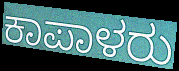
ಕಾಪಾಳರು